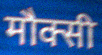
मौक्सी